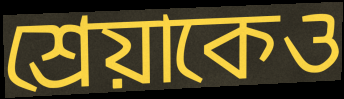
শ্রেয়াকেও